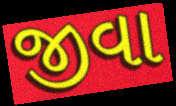
જીવા